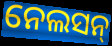
ନେଲସନ୍